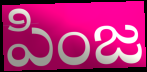
పింజ